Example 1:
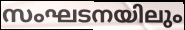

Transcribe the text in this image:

സംഘടനയിലും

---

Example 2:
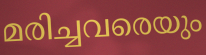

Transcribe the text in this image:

മരിച്ചവരെയും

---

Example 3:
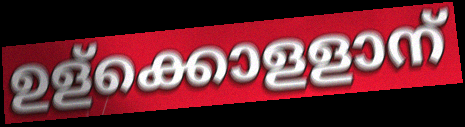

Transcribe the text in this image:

ഉള്ക്കൊളളാന്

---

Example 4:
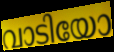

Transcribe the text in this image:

വാടിയോ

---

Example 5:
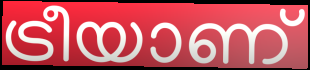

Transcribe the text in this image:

ട്രീയാണ്